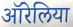
ऑरेलिया